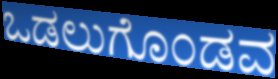
ಒಡಲುಗೊಂಡವ